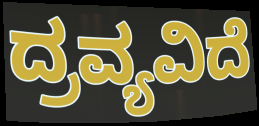
ದ್ರವ್ಯವಿದೆ